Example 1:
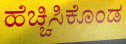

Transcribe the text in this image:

ಹೆಚ್ಚಿಸಿಕೊಂಡ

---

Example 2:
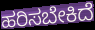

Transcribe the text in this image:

ಹರಿಸಬೇಕಿದೆ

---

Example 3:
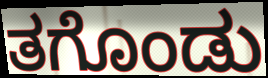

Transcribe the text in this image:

ತಗೊಂಡು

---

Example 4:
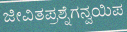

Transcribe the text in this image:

ಜೀವಿತಪ್ರಶ್ನೆಗನ್ವಯಿಪ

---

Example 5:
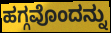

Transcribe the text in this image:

ಹಗ್ಗವೊಂದನ್ನು